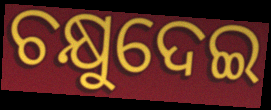
ଚକ୍ଷୁଦେଇ